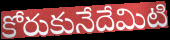
కోరుకునేదేమిటి